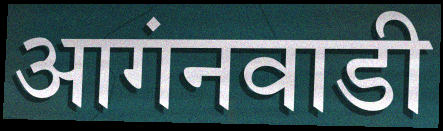
आगंनवाडी